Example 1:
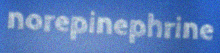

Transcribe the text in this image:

norepinephrine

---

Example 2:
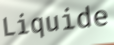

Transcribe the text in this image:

Liquide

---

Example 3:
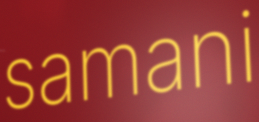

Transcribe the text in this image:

samani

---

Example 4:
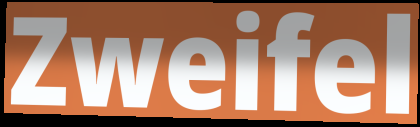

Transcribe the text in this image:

Zweifel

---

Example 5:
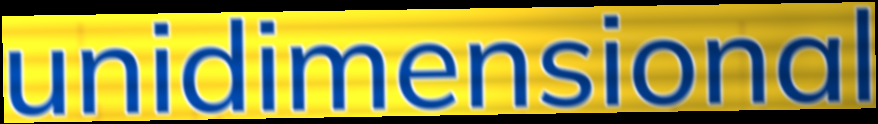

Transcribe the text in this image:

unidimensional